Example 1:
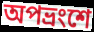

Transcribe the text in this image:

অপভ্রংশে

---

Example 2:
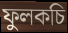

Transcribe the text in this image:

ফুলকচি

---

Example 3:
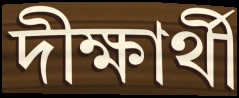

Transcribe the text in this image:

দীক্ষার্থী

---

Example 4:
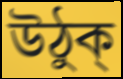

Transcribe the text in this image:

উঠুক্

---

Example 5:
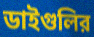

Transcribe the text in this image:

ডাইগুলির